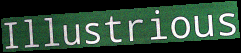
Illustrious